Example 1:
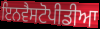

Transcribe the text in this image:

ਇਨਵੈਸਟੋਪੀਡੀਆ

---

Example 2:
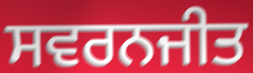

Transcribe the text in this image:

ਸਵਰਨਜੀਤ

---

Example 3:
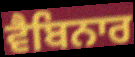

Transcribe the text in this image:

ਵੈਬਿਨਾਰ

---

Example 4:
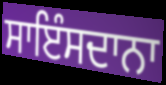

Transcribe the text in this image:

ਸਾਇੰਸਦਾਨਾ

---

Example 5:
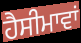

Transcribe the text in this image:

ਹੈਸੀਮਾਵਾਂ